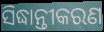
ସିଦ୍ଧାନ୍ତୀକରଣ